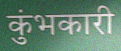
कुंभकारी